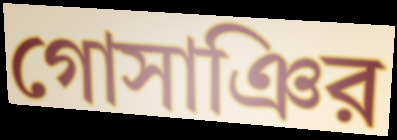
গোসাঞির